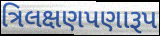
ત્રિલક્ષણપણારૂપ